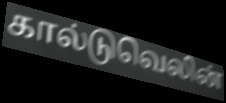
கால்டுவெலின்